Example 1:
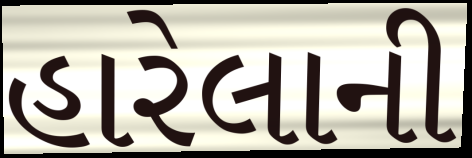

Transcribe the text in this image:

હારેલાની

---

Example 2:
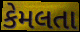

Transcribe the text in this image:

કેમલતા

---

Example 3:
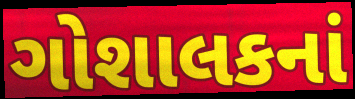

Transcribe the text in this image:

ગોશાલકનાં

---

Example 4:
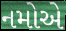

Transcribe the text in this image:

નમોએ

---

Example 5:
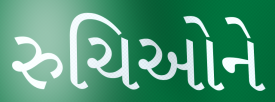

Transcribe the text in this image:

રુચિઓને